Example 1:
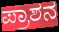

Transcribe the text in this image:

ಪ್ರಾಶನ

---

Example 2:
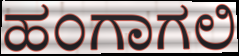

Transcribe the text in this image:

ಹಂಗಾಗಲಿ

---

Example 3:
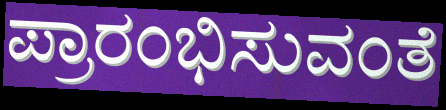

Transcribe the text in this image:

ಪ್ರಾರಂಭಿಸುವಂತೆ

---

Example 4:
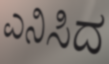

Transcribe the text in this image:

ಎನಿಸಿದ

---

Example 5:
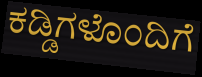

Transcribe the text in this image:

ಕಡ್ಡಿಗಳೊಂದಿಗೆ